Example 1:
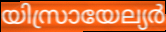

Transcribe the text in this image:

യിസ്രായേല്യർ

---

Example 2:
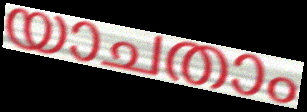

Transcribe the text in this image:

യാചതാം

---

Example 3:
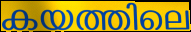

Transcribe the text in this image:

കയത്തിലെ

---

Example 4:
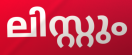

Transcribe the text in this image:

ലിസ്റ്റും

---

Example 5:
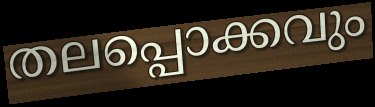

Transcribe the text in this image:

തലപ്പൊക്കവും